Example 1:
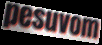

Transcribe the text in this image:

pesuvom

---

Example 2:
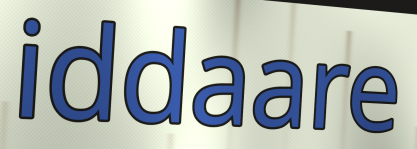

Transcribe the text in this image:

iddaare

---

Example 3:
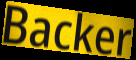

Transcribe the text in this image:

Backer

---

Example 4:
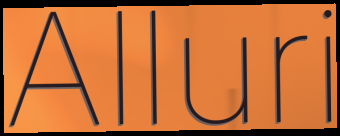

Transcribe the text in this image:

Alluri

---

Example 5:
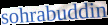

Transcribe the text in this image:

sohrabuddin